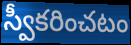
స్వీకరించటం